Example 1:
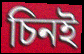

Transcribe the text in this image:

চিনই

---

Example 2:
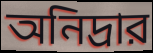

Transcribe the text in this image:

অনিদ্রার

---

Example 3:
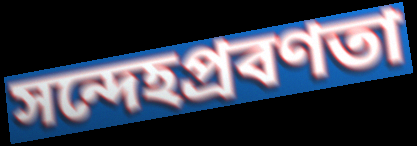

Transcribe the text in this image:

সন্দেহপ্রবণতা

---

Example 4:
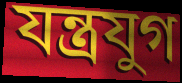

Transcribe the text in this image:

যন্ত্রযুগ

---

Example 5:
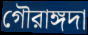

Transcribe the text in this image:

গৌরাঙ্গদা